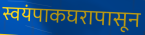
स्वयंपाकघरापासून